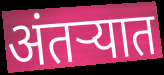
अंतऱ्यात